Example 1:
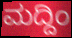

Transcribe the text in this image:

ಮದ್ದಿಂ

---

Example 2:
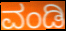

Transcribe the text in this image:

ವಂಡಿ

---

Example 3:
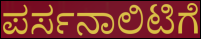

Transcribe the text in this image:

ಪರ್ಸನಾಲಿಟಿಗೆ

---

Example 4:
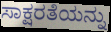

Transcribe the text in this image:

ಸಾಕ್ಷರತೆಯನ್ನು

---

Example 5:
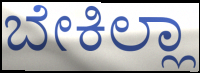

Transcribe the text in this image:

ಬೇಕಿಲ್ಲಾ